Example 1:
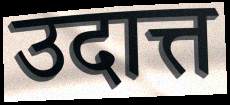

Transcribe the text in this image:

उदात्त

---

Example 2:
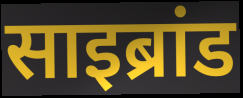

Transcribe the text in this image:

साइब्रांड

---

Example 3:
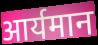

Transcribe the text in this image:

आर्यमान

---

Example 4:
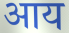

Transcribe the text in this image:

आय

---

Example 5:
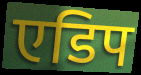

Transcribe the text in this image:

एडिप